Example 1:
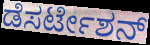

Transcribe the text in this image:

ಡೆಸರ್ಟೇಶನ್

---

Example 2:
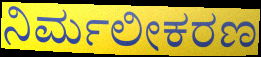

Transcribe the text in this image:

ನಿರ್ಮಲೀಕರಣ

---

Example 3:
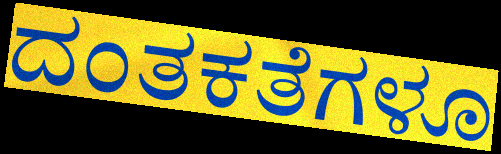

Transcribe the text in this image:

ದಂತಕತೆಗಳೂ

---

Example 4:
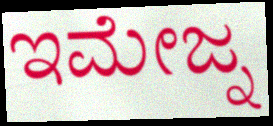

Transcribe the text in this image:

ಇಮೇಜ್ನ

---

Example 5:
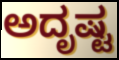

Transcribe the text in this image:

ಅದೃಷ್ಟ